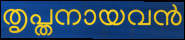
തൃപ്തനായവൻ